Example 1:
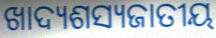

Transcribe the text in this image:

ଖାଦ୍ୟଶସ୍ୟଜାତୀୟ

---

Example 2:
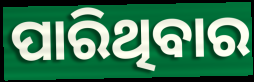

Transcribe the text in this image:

ପାରିଥିବାର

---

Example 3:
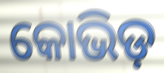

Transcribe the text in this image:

କୋଭିଡ଼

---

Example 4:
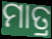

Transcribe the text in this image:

ମାତ୍ର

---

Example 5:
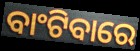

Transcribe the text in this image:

ବାଂଟିବାରେ